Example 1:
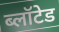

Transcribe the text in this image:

ब्लॉटेड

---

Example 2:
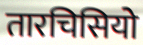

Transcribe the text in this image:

तारचिसियो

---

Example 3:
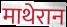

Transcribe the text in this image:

माथेरान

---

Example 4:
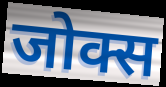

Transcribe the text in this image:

जोक्स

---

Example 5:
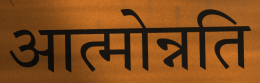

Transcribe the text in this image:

आत्मोन्नति